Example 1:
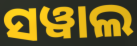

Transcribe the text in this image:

ସୱାଲ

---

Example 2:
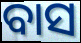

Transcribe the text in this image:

ବାସ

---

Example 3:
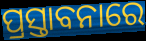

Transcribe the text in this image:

ପ୍ରସ୍ତାବନାରେ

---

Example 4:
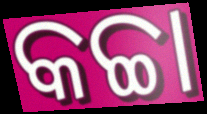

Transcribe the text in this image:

କଚ୍ଚା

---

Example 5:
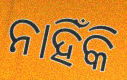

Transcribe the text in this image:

ନାହିଁକି